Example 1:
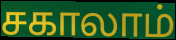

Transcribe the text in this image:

சகாலாம்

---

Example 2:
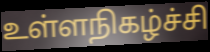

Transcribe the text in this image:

உள்ளநிகழ்ச்சி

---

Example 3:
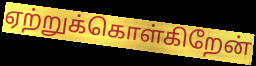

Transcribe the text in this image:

ஏற்றுக்கொள்கிறேன்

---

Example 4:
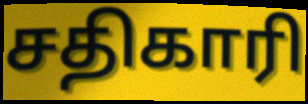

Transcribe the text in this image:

சதிகாரி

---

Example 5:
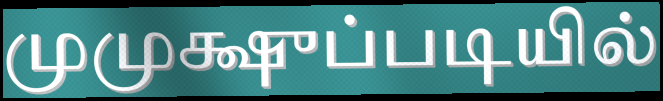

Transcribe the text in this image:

முமுக்ஷுப்படியில்